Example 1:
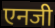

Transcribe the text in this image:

एनजी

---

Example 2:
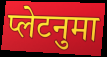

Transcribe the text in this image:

प्लेटनुमा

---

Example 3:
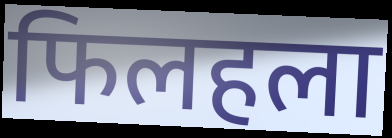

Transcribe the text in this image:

फिलहला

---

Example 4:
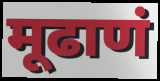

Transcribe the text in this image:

मूढाणं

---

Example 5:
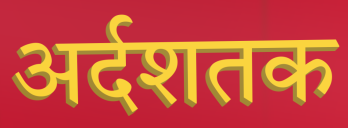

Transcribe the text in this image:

अर्दशतक